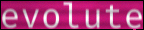
evolute